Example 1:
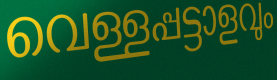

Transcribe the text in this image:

വെള്ളപ്പട്ടാളവും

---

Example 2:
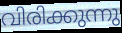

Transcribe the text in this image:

വിരിക്കുന്നു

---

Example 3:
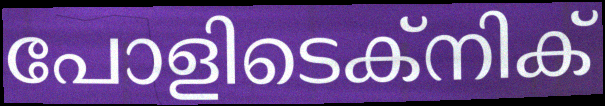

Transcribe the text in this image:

പോളിടെക്നിക്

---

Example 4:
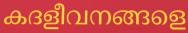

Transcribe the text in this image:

കദളീവനങ്ങളെ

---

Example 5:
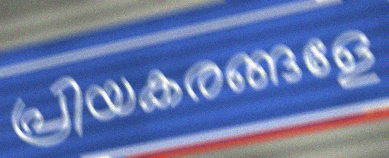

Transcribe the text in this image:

പ്രിയകരങ്ങളേ